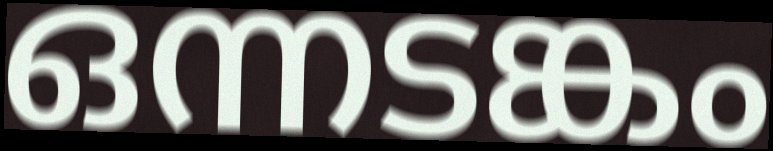
ഒന്നടങ്കം